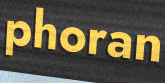
phoran